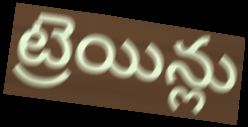
ట్రెయిన్లు